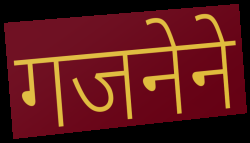
गजनेने